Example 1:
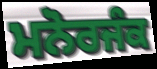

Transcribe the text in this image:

ਮਨੋਰਜੰਕ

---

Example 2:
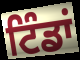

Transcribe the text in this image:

ਟਿੰਡਾਂ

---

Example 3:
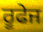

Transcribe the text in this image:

ਰੂਫੇਜ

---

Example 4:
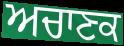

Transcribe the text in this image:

ਅਚਾਣਕ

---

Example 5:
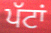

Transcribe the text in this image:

ਪੱਟਾਂ